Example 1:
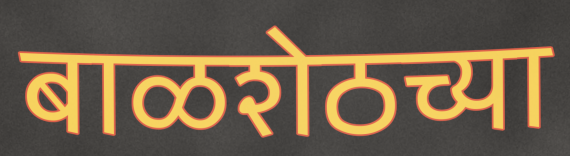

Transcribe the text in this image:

बाळशेठच्या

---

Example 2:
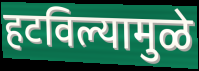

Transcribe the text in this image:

हटविल्यामुळे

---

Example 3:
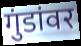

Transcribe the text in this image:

गुंडांवर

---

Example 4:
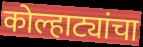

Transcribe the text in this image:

कोल्हाट्यांचा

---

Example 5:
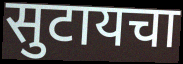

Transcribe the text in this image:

सुटायचा